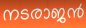
നടരാജൻ